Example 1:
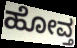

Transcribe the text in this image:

ಹೋವ್ತ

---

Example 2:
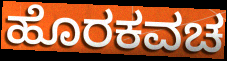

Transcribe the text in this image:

ಹೊರಕವಚ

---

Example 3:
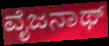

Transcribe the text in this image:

ವೈಜನಾಥ್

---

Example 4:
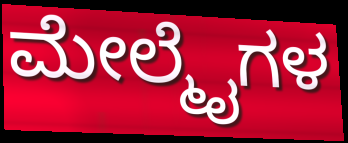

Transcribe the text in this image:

ಮೇಲ್ಮೈಗಳ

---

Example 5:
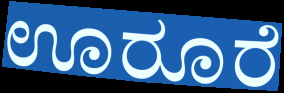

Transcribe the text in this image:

ಊರೂರೆ